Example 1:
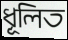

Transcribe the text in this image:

ধূলিত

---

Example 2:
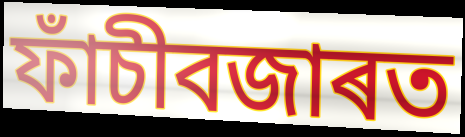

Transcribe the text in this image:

ফাঁচীবজাৰত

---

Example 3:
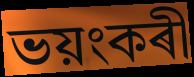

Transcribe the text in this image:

ভয়ংকৰী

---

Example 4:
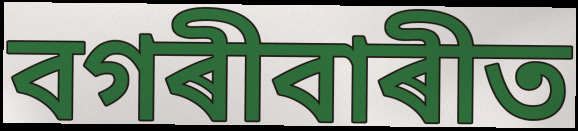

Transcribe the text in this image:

বগৰীবাৰীত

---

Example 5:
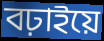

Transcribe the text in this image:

বঢ়াইয়ে